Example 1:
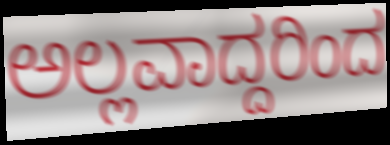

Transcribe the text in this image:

ಅಲ್ಲವಾದ್ದರಿಂದ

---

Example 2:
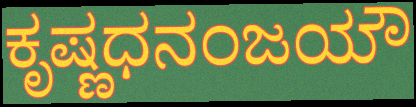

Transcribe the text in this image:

ಕೃಷ್ಣಧನಂಜಯೌ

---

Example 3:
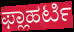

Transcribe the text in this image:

ಫ್ಲಾಹರ್ಟಿ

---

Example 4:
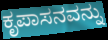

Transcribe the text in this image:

ಕೃಪಾಸನವನ್ನು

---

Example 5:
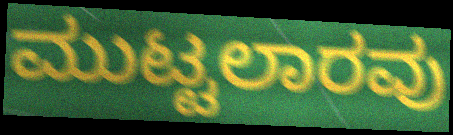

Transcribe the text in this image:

ಮುಟ್ಟಲಾರವು